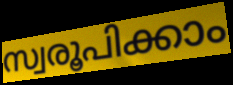
സ്വരൂപിക്കാം